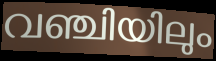
വഞ്ചിയിലും